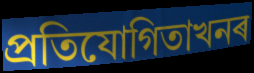
প্ৰতিযোগিতাখনৰ